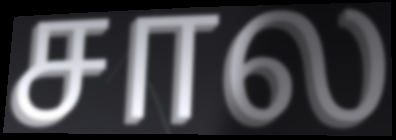
சால